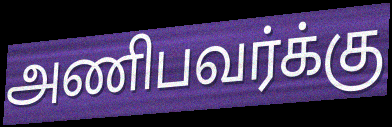
அணிபவர்க்கு